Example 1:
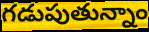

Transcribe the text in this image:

గడుపుతున్నాం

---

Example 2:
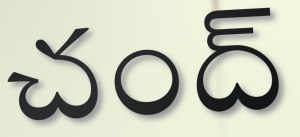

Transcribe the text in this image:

చంద్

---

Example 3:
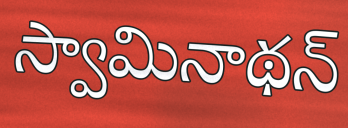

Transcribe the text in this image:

స్వామినాథన్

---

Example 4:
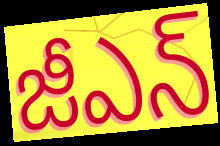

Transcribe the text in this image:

జీఎన్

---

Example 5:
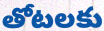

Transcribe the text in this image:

తోటలకు